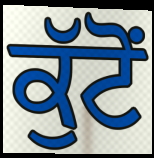
ਕੁੱਟੋਂ